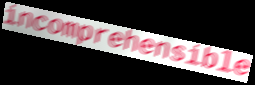
incomprehensible